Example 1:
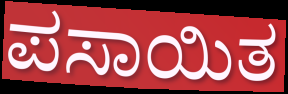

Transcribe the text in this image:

ಪಸಾಯಿತ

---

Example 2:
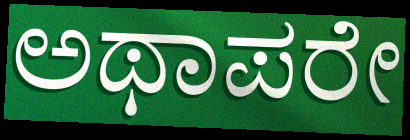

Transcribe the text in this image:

ಅಥಾಪರೇ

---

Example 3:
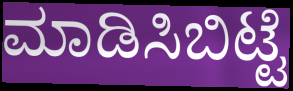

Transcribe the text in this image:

ಮಾಡಿಸಿಬಿಟ್ಟೆ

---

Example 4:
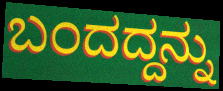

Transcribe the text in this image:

ಬಂದದ್ದನ್ನು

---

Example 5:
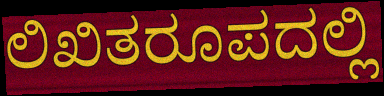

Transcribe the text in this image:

ಲಿಖಿತರೂಪದಲ್ಲಿ